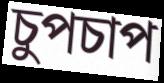
চুপচাপ